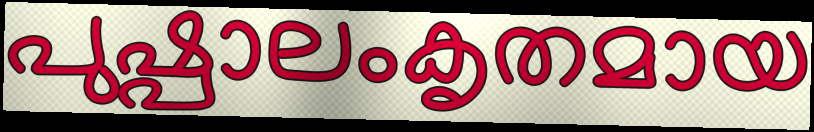
പുഷ്പാലംകൃതമായ